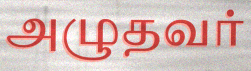
அழுதவர்